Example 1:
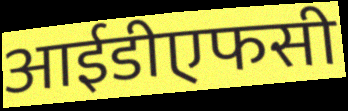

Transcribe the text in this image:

आईडीएफसी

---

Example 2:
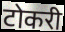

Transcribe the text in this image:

टोकरी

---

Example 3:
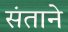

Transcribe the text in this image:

संताने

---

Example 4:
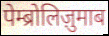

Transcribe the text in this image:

पेम्ब्रोलिज़ुमाब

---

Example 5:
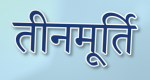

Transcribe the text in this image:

तीनमूर्ति